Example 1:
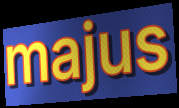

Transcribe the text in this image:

majus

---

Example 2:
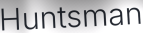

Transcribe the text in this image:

Huntsman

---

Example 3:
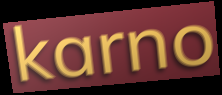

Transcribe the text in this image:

karno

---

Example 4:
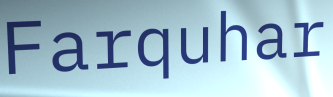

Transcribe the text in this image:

Farquhar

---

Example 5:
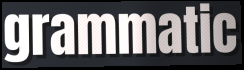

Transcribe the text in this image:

grammatic